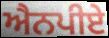
ਐਨਪੀਏ